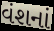
વંશનાં